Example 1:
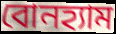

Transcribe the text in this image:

বোনহ্যাম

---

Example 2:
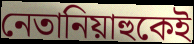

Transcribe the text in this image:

নেতানিয়াহুকেই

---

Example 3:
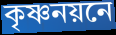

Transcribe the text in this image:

কৃষ্ণনয়নে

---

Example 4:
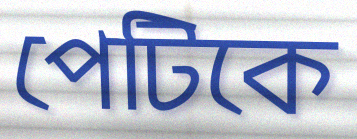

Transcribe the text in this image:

পেটিকে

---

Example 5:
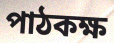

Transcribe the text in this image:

পাঠকক্ষ